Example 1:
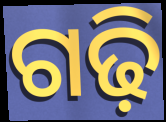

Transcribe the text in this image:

ଗଢ଼ି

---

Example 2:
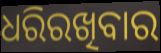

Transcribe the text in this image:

ଧରିରଖିବାର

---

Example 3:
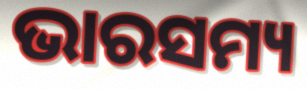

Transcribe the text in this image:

ଭାରସମ୍ୟ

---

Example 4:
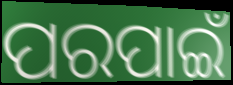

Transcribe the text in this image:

ପରପାଇଁ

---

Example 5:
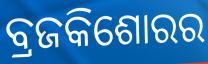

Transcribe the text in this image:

ବ୍ରଜକିଶୋରର